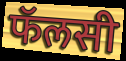
फॅलसी